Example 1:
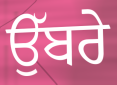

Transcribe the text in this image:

ਉੱਬਰੇ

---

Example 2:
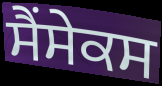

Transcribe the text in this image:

ਸੈਂਸੇਕਸ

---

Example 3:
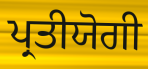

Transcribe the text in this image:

ਪ੍ਰਤੀਯੋਗੀ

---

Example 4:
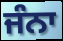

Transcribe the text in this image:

ਜੰਨਾ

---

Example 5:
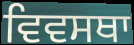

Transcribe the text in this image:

ਵਿਵਸਥਾ